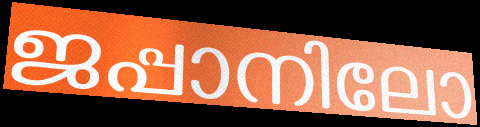
ജപ്പാനിലോ